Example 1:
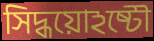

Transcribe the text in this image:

সিদ্ধয়োঽষ্টৌ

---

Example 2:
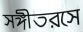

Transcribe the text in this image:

সঙ্গীতরসে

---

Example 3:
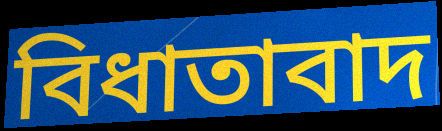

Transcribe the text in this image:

বিধাতাবাদ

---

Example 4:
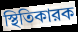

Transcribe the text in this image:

স্থিতিকারক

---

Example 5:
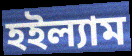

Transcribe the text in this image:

হইল্যাম